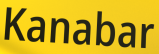
Kanabar